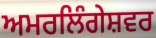
ਅਮਰਲਿੰਗੇਸ਼ਵਰ